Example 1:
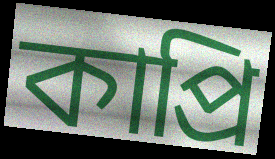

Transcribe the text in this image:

কাপ্রি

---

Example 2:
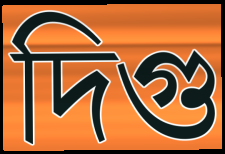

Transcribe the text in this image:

দিগু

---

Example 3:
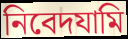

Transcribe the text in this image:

নিবেদযামি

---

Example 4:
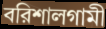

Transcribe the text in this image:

বরিশালগামী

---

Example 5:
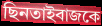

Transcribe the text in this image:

ছিনতাইবাজকে